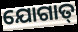
ଯୋଗାତ୍